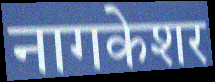
नागकेशर